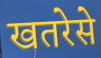
खतरेसे